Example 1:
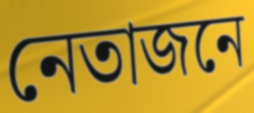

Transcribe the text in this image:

নেতাজনে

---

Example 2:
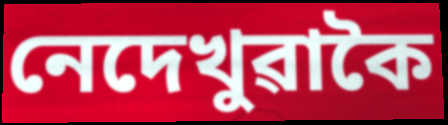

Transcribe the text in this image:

নেদেখুৱাকৈ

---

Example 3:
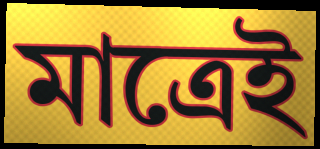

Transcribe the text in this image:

মাত্ৰেই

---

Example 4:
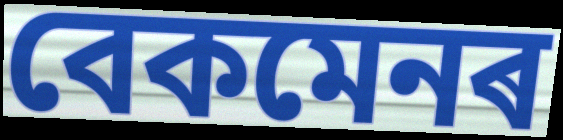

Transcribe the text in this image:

বেকমেনৰ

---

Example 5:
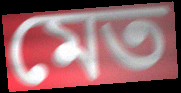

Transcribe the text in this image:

মেত